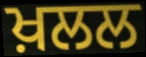
ਖ਼ਲਲ